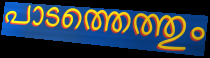
പാടത്തെത്തും